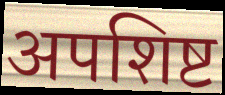
अपशिष्ट